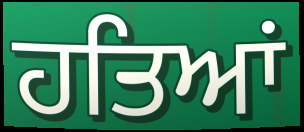
ਹਤਿਆਂ